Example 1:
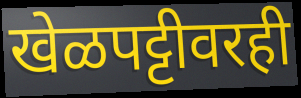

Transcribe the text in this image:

खेळपट्टीवरही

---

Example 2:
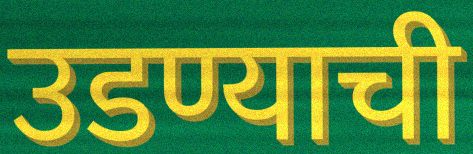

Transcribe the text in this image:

उडण्याची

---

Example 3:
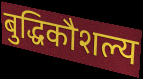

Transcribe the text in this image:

बुद्धिकौशल्य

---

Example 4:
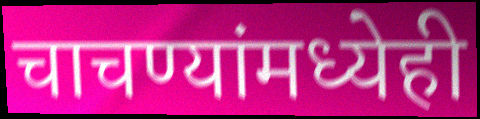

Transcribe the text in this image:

चाचण्यांमध्येही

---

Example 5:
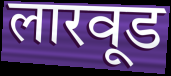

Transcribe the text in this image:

लारवूड